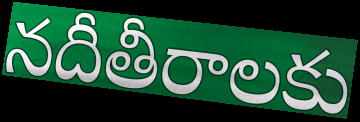
నదీతీరాలకు